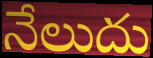
నేలుదు